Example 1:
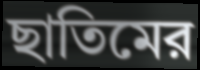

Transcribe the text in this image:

ছাতিমের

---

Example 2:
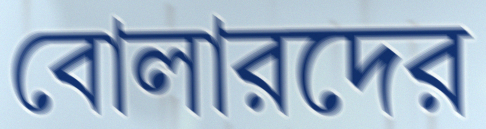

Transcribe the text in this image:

বোলারদের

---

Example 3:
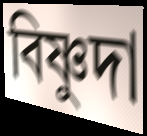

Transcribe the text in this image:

বিষ্ণুদা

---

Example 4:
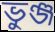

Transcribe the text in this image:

ভুঞ্জ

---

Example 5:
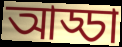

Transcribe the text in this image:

আড্ডা